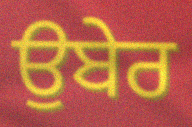
ਉਬੇਰ